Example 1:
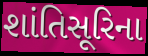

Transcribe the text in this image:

શાંતિસૂરિના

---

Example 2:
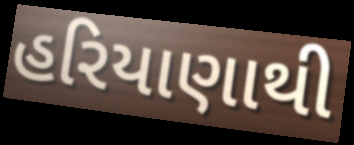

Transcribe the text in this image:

હરિયાણાથી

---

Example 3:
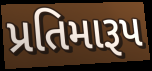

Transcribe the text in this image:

પ્રતિમારૂપ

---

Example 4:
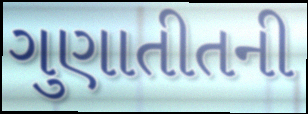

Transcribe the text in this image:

ગુણાતીતની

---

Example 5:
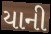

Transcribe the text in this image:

યાની